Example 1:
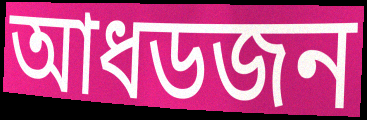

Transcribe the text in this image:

আধডজন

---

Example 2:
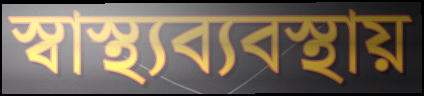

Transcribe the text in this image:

স্বাস্থ্যব্যবস্থায়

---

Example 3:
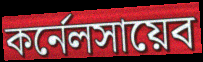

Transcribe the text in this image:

কর্নেলসায়েব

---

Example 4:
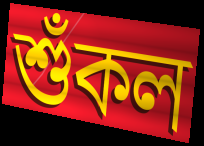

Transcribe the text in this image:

শুঁকল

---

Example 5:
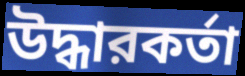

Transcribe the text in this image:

উদ্ধারকর্তা